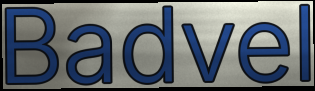
Badvel